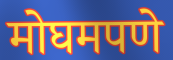
मोघमपणे